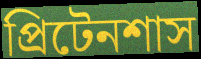
প্রিটেনশাস